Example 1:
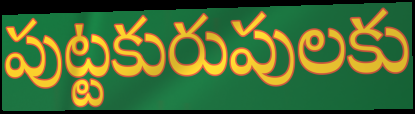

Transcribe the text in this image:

పుట్టకురుపులకు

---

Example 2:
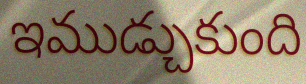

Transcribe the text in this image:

ఇముడ్చుకుంది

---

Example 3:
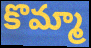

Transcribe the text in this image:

కొమ్మా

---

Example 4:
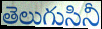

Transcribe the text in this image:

తెలుగుసినీ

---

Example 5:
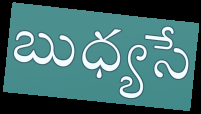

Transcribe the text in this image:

బుధ్యసే